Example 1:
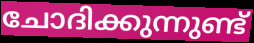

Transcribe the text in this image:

ചോദിക്കുന്നുണ്ട്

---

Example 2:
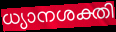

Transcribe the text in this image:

ധ്യാനശക്തി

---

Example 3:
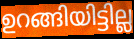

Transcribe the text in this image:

ഉറങ്ങിയിട്ടില്ല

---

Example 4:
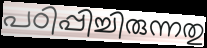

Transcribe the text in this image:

പഠിപ്പിച്ചിരുന്നതു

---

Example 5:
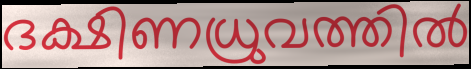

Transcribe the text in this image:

ദക്ഷിണധ്രുവത്തിൽ